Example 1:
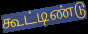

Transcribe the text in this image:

கூட்டிண்டு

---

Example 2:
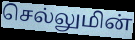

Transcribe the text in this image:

செல்லுமின்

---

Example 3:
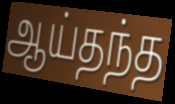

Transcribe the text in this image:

ஆய்தந்த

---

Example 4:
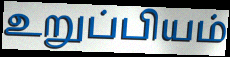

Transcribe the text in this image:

உறுப்பியம்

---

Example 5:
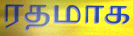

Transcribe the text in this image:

ரதமாக